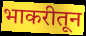
भाकरीतून